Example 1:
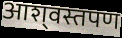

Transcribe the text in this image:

आश्वस्तपण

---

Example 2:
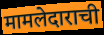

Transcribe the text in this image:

मामलेदाराची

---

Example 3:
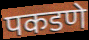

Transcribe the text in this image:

पकडणे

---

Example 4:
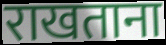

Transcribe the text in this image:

राखताना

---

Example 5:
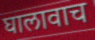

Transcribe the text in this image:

घालावाच